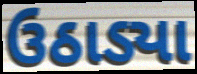
ઉઠાડ્યા